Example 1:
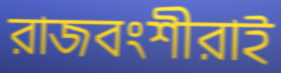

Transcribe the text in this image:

রাজবংশীরাই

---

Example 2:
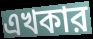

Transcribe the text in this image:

এখকার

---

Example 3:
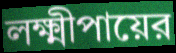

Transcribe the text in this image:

লক্ষ্মীপায়ের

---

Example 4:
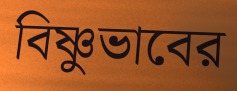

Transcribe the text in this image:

বিষ্ণুভাবের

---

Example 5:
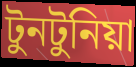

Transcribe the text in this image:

টুনটুনিয়া